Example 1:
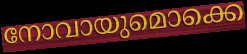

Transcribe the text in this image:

നോവായുമൊക്കെ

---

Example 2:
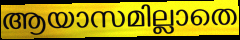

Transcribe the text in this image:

ആയാസമില്ലാതെ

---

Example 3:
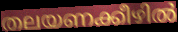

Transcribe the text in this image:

തലയണക്കീഴിൽ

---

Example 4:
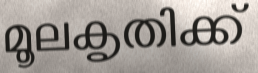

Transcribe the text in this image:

മൂലകൃതിക്ക്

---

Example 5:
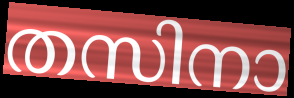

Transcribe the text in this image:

തസിനാ